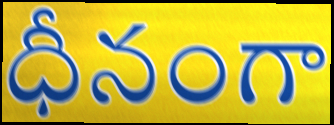
ధీనంగా